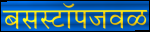
बसस्टॉपजवळ